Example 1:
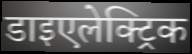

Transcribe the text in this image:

डाइएलेक्ट्रिक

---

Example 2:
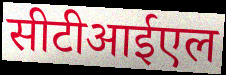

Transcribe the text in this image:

सीटीआईएल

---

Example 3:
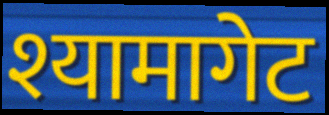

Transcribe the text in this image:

श्यामागेट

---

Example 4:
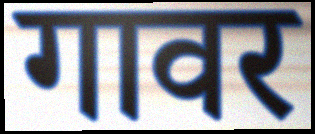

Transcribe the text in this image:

गावर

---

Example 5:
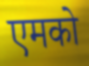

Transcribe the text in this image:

एमको